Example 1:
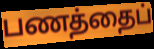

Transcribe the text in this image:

பணத்தைப்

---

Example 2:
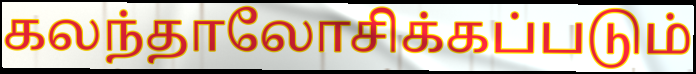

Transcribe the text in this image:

கலந்தாலோசிக்கப்படும்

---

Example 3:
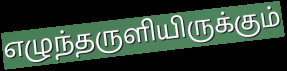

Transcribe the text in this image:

எழுந்தருளியிருக்கும்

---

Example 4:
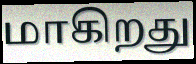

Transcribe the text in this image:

மாகிறது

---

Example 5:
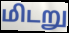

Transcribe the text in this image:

மிடறு